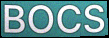
BOCS